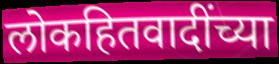
लोकहितवादींच्या